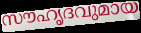
സൗഹൃദവുമായ